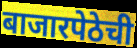
बाजारपेठेची